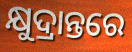
କ୍ଷୁଦ୍ରାନ୍ତରେ